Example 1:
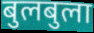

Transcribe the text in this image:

बुलबुला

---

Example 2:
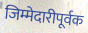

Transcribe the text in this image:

जिम्मेदारीपूर्वक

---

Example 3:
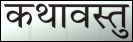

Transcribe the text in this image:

कथावस्तु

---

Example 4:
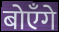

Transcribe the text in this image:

बोएँगे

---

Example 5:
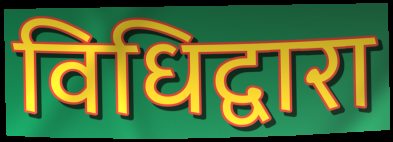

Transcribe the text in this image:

विधिद्वारा